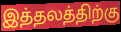
இத்தலத்திற்கு